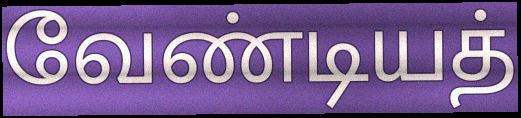
வேண்டியத்